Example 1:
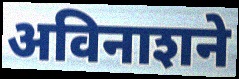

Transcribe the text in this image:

अविनाशने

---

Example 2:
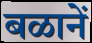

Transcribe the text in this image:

बळानें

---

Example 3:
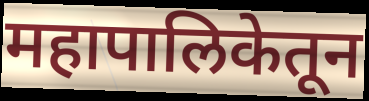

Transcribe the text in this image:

महापालिकेतून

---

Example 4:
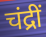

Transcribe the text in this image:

चंद्रीं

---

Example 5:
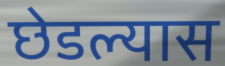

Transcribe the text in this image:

छेडल्यास